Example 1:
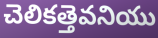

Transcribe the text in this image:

చెలికత్తెవనియు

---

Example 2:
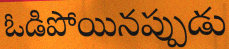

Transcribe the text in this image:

ఓడిపోయినప్పుడు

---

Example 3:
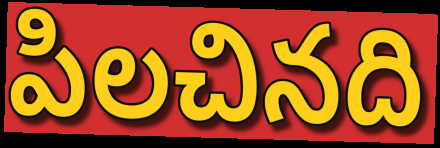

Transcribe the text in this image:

పిలచినది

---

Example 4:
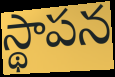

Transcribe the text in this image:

స్థాపన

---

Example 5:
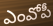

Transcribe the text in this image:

ఎంవోపీ